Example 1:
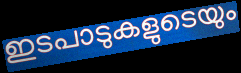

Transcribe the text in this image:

ഇടപാടുകളുടെയും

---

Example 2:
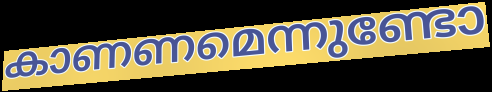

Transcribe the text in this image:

കാണണമെന്നുണ്ടോ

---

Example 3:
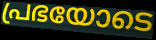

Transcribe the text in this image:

പ്രഭയോടെ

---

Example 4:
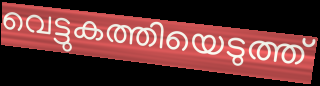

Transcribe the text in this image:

വെട്ടുകത്തിയെടുത്ത്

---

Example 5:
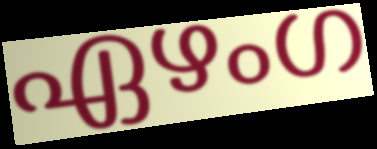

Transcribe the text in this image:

ഏഴംഗ